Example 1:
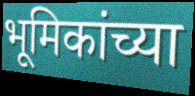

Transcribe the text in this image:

भूमिकांच्या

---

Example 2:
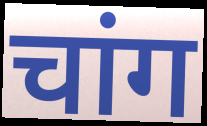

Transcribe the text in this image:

चांग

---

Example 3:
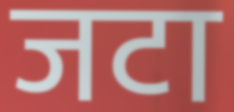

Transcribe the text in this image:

जटा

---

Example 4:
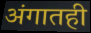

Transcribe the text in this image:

अंगातही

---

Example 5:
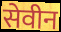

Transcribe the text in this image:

सेवीन